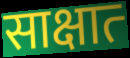
साक्षात्‍